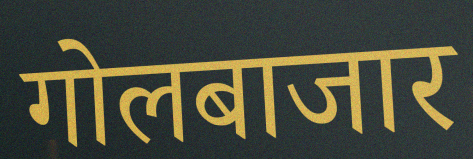
गोलबाजार